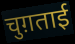
चुग़ताई